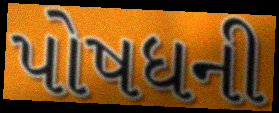
પોષધની